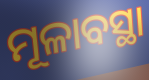
ମୂଳାବସ୍ଥା